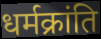
धर्मक्रांति